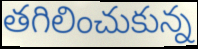
తగిలించుకున్న